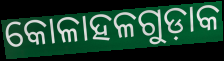
କୋଳାହଳଗୁଡ଼ାକ